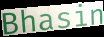
Bhasin